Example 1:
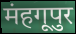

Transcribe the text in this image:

मंहगूपुर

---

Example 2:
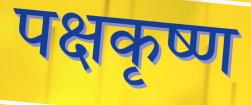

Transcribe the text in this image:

पक्षकृष्ण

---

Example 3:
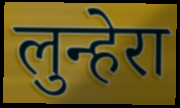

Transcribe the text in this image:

लुन्हेरा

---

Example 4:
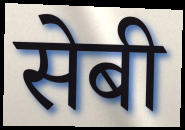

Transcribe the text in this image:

सेबी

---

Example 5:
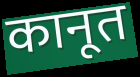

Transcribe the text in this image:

कानूत